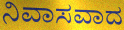
ನಿವಾಸವಾದ